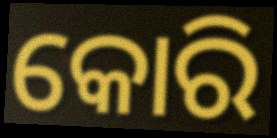
କୋରି